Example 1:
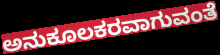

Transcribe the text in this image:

ಅನುಕೂಲಕರವಾಗುವಂತೆ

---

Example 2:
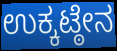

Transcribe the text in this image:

ಉಕ್ಕಟ್ಠೇನ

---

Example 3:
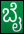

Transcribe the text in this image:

ಬೈ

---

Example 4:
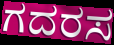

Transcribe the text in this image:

ಗದರಸ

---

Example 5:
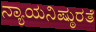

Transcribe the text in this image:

ನ್ಯಾಯನಿಷ್ಠುರತೆ